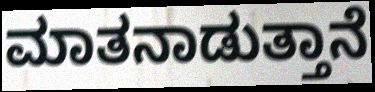
ಮಾತನಾಡುತ್ತಾನೆ